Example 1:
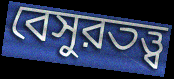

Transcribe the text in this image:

বেসুরতত্ত্ব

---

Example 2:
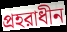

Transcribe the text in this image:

প্রহরাধীন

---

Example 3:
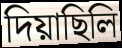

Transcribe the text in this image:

দিয়াছিলি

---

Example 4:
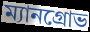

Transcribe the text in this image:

ম্যানগ্রোভ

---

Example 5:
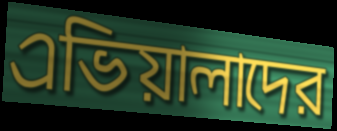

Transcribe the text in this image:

এভিয়ালাদের